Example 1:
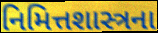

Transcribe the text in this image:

નિમિત્તશાસ્ત્રના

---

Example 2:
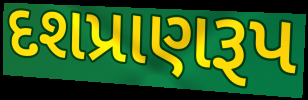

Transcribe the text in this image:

દશપ્રાણરૂપ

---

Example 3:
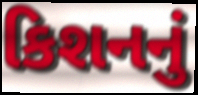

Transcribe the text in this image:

કિશનનું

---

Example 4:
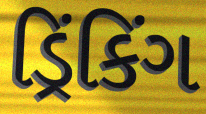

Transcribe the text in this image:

ડ્રિંકિંગ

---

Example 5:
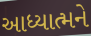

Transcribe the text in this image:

આધ્યાત્મને